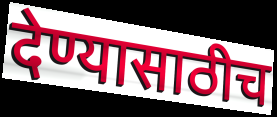
देण्यासाठीच